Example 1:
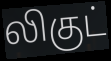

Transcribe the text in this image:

லிகுட்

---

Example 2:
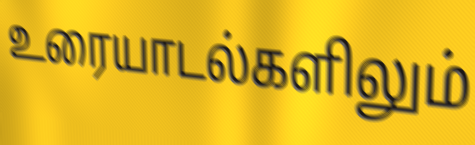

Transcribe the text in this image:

உரையாடல்களிலும்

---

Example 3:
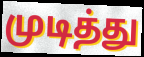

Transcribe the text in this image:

முடித்து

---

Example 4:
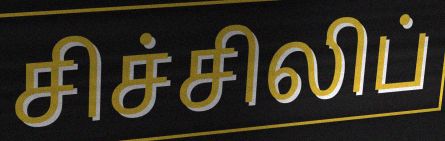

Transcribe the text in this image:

சிச்சிலிப்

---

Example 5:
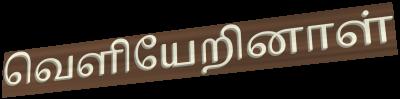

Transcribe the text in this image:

வெளியேறினாள்